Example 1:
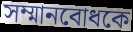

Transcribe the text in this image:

সম্মানবোধকে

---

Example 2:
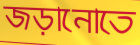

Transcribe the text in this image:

জড়ানোতে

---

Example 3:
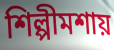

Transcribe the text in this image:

শিল্পীমশায়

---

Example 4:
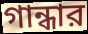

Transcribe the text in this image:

গান্ধার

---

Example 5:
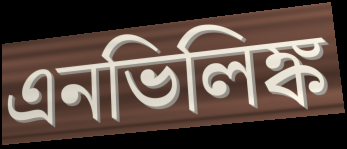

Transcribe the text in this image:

এনভিলিঙ্ক